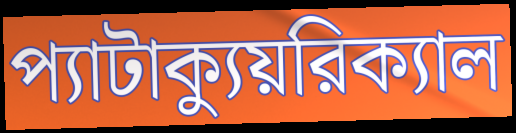
প্যাটাক্যুয়রিক্যাল